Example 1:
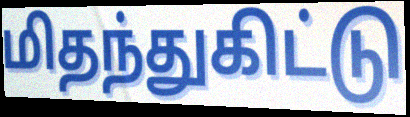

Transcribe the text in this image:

மிதந்துகிட்டு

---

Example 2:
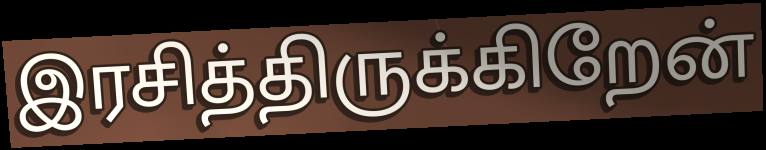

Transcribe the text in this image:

இரசித்திருக்கிறேன்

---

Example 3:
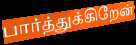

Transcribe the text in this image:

பார்த்துக்கிறேன்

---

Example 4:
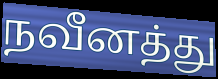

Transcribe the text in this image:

நவீனத்து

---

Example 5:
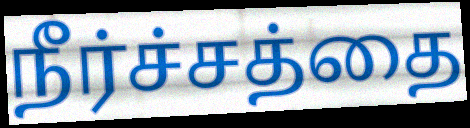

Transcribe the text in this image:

நீர்ச்சத்தை